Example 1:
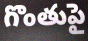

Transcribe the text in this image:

గొంతుపై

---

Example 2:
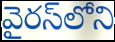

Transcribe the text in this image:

వైరస్‌లోని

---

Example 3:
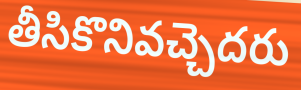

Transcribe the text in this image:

తీసికొనివచ్చెదరు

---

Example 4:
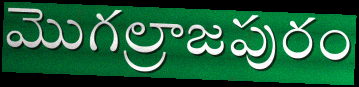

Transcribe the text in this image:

మొగల్రాజపురం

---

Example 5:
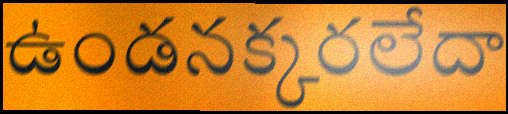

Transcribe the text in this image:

ఉండనక్కరలేదా